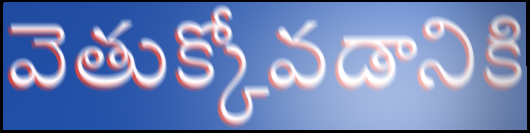
వెతుక్కోవడానికి